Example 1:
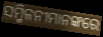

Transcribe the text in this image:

ସମ୍ମିଳନୀମାନଙ୍କରେ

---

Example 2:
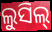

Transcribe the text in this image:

ଲୁସିଲ୍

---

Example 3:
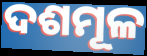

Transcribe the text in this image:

ଦଶମୂଳ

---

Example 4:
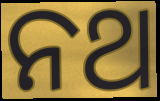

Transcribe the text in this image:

ନଥ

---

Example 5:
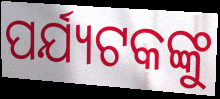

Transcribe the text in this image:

ପର୍ଯ୍ୟଟକଙ୍କୁ